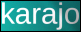
karajo